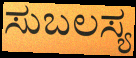
ಸುಬಲಸ್ಯ